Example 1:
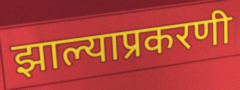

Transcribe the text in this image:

झाल्याप्रकरणी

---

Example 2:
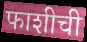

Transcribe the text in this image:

फाशीची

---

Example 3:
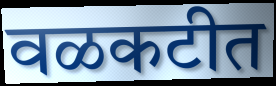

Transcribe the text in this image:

वळकटीत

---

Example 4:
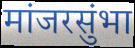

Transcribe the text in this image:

मांजरसुंभा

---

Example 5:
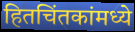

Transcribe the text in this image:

हितचिंतकांमध्ये